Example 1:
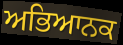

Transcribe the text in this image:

ਅਭਿਆਨਕ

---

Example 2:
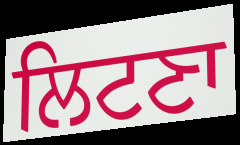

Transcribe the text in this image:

ਲਿਟਣਾ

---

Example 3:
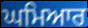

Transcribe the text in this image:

ਘਮਿਆਰ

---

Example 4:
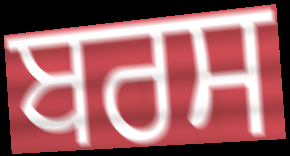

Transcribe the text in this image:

ਬਰਸ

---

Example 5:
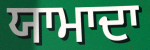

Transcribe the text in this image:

ਯਾਮਾਦਾ